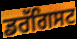
ਡਰੱਗਿਸਟ